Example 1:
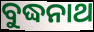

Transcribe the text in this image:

ବୁଦ୍ଧନାଥ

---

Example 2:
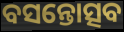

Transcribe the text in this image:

ବସନ୍ତୋତ୍ସବ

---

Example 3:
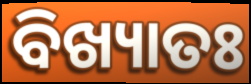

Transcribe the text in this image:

ବିଖ୍ୟାତଃ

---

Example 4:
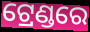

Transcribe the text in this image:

ଟ୍ରେଣ୍ଡରେ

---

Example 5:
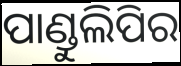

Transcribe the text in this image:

ପାଣ୍ଡୁଲିପିର